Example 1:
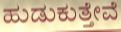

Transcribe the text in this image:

ಹುಡುಕುತ್ತೇವೆ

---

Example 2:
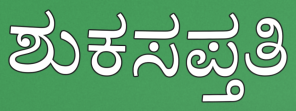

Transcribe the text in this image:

ಶುಕಸಪ್ತತಿ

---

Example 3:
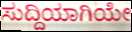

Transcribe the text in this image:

ಸುದ್ದಿಯಾಗಿಯೇ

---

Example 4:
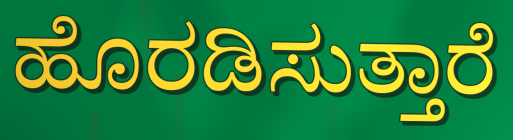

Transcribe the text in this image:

ಹೊರಡಿಸುತ್ತಾರೆ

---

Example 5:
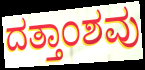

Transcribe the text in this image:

ದತ್ತಾಂಶವು